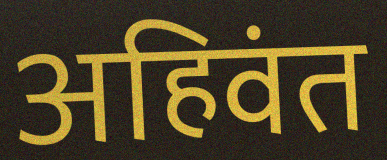
अहिवंत